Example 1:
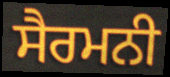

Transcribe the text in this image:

ਸੈਰਮਨੀ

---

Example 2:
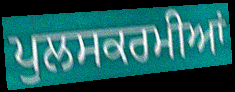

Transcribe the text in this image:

ਪੁਲਸਕਰਮੀਆਂ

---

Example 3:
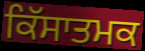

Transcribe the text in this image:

ਕਿੱਸਾਤਮਕ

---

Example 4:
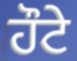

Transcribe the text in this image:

ਹੌਟੇ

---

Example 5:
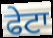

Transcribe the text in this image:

ਫੇਟਾ